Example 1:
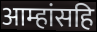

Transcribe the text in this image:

आम्हांसहि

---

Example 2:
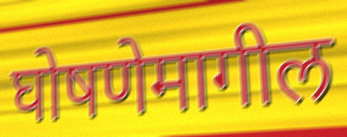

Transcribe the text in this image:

घोषणेमागील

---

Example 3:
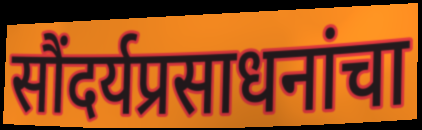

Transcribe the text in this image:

सौंदर्यप्रसाधनांचा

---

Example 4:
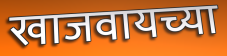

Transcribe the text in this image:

खाजवायच्या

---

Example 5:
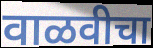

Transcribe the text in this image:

वाळवीचा